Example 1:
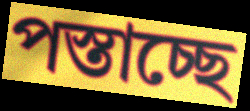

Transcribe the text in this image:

পস্তাচ্ছে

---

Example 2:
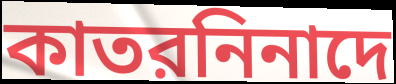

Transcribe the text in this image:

কাতরনিনাদে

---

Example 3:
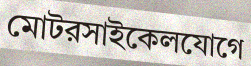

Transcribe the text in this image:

মোটরসাইকেলযোগে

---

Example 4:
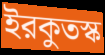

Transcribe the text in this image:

ইরকুতস্ক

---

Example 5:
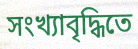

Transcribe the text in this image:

সংখ্যাবৃদ্ধিতে